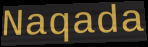
Naqada